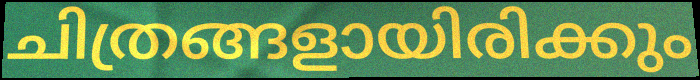
ചിത്രങ്ങളായിരിക്കും